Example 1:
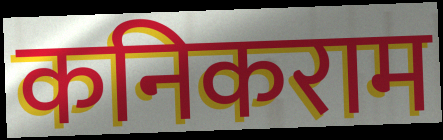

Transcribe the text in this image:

कनिकराम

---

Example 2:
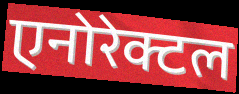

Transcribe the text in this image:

एनोरेक्टल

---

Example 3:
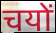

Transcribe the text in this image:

चयों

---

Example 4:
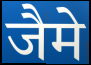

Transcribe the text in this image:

जैमे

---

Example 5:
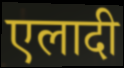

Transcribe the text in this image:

एलादी